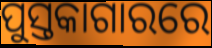
ପୁସ୍ତକାଗାରରେ